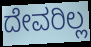
ದೇವರಿಲ್ಲ